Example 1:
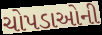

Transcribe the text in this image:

ચોપડાઓની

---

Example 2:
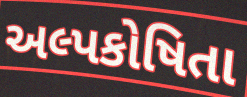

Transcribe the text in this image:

અલ્પકોષિતા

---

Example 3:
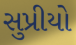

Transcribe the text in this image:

સુપ્રીયો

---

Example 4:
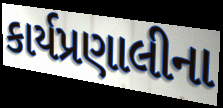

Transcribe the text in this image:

કાર્યપ્રણાલીના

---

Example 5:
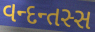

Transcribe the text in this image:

વન્દન્તસ્સ